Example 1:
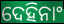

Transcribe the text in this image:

ଦେହିନାଂ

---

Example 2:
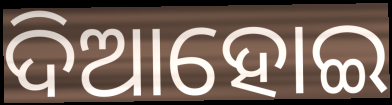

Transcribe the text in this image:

ଦିଆହୋଇ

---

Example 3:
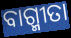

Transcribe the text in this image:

ବାଗ୍ମୀତା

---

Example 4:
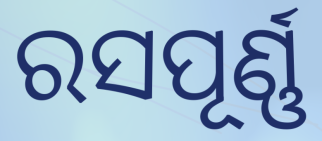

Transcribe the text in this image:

ରସପୂର୍ଣ୍ଣ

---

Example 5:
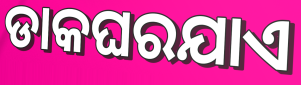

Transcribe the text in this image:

ଡାକଘରଯାଏ